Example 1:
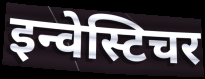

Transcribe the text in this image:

इन्वेस्टिचर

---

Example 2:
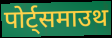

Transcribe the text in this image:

पोर्ट्समाउथ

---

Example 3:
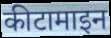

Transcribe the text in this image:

कीटामाइन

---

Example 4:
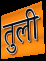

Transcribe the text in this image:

तुली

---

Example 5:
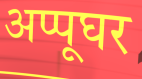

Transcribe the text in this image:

अप्पूघर